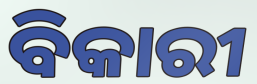
ବିକାରୀ